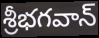
శ్రీభగవాన్